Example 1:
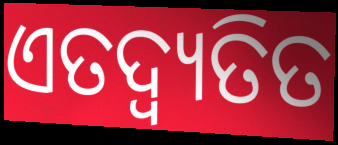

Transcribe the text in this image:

ଏତଦ୍ବ୍ୟତିତ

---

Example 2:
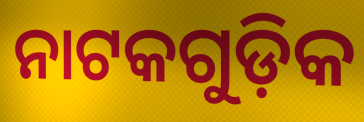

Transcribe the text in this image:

ନାଟକଗୁଡ଼ିକ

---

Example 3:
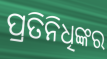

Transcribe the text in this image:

ପ୍ରତିନିଧିଙ୍କର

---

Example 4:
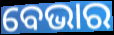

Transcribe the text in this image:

ବେଭାର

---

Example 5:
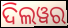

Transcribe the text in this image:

ଦିଲୱର